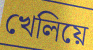
খেলিয়ে